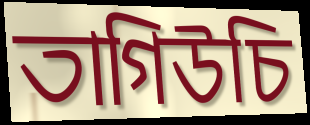
তাগিউচি